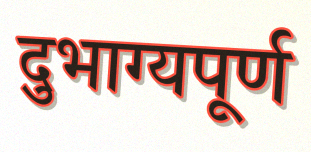
दुभाग्यपूर्ण